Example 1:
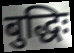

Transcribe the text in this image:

बुद्धिः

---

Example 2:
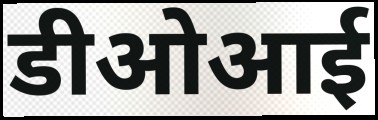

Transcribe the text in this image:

डीओआई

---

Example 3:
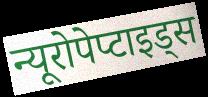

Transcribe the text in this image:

न्यूरोपेप्टाइड्स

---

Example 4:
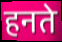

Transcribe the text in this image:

हनते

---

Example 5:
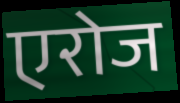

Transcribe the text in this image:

एरोज